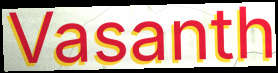
Vasanth